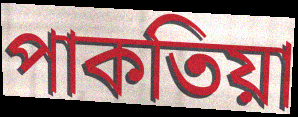
পাকতিয়া